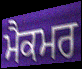
ਮੈਕਮਰ